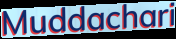
Muddachari